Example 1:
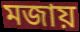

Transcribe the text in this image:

মজায়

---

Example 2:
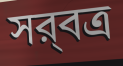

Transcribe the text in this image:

সর্‍বত্র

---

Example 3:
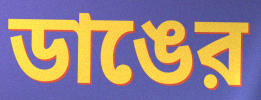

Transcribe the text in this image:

ডাঙের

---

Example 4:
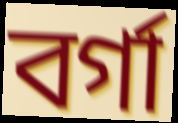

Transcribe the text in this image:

বর্গা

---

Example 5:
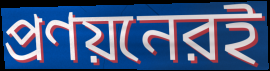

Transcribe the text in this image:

প্রণয়নেরই